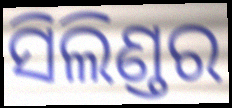
ସିଲିଣ୍ଡର